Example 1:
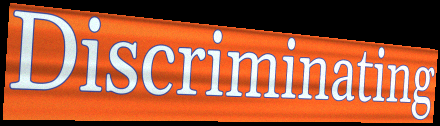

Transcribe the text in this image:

Discriminating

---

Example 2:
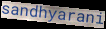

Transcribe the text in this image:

sandhyarani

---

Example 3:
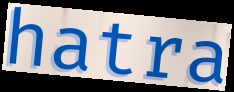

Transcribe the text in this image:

hatra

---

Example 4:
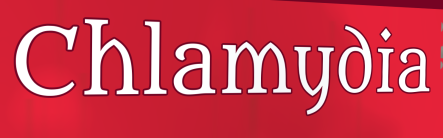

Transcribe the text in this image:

Chlamydia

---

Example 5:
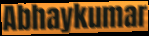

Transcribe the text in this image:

Abhaykumar